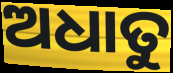
ଅଧାତୁ